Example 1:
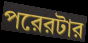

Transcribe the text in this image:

পরেরটার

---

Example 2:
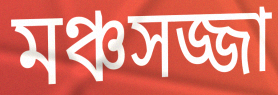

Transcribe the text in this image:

মঞ্চসজ্জা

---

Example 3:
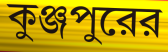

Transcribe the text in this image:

কুঞ্জপুরের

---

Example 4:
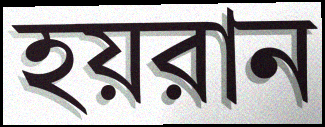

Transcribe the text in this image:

হয়রান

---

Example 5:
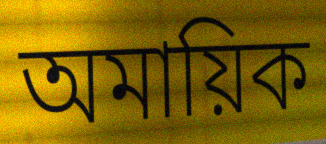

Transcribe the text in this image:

অমায়িক